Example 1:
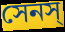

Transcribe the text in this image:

সেনস্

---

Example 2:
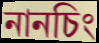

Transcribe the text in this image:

নানচিং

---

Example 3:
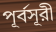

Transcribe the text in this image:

পূর্বসূরী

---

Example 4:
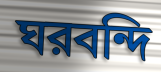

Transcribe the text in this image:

ঘরবন্দি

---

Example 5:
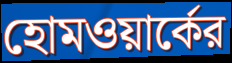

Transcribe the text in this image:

হোমওয়ার্কের